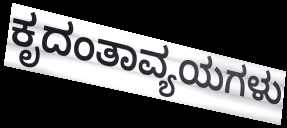
ಕೃದಂತಾವ್ಯಯಗಳು